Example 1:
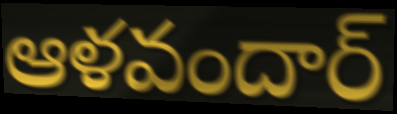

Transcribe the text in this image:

ఆళవందార్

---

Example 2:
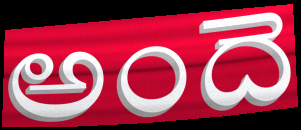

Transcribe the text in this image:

అందె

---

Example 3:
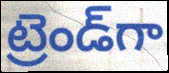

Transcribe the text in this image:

ట్రెండ్‌గా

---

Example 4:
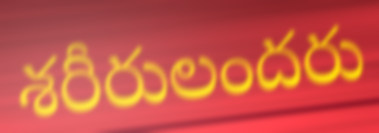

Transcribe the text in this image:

శరీరులందరు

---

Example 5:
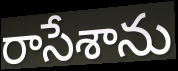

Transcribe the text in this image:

రాసేశాను